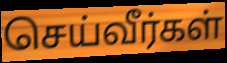
செய்வீர்கள்